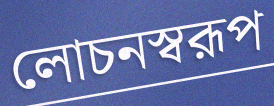
লোচনস্বরূপ